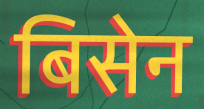
बिसेन